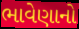
ભાવેણાનો